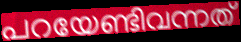
പറയേണ്ടിവന്നത്